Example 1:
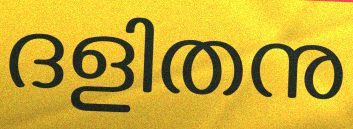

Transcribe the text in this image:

ദളിതനു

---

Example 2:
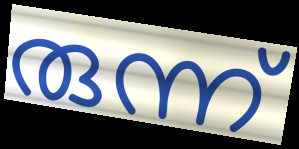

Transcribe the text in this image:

രുന്ന്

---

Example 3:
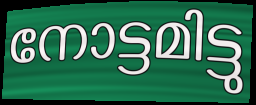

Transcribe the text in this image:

നോട്ടമിട്ടു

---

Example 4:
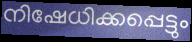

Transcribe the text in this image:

നിഷേധിക്കപ്പെട്ടും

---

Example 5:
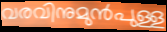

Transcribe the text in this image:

വരവിനുമുൻപുള്ള